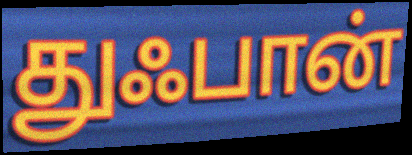
துஃபான்